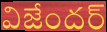
విజేందర్